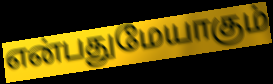
என்பதுமேயாகும்